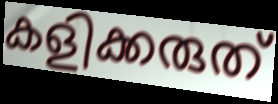
കളിക്കരുത്